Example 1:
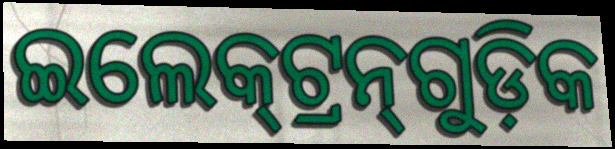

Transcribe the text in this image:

ଇଲେକ୍‍ଟ୍ରନ୍‍ଗୁଡ଼ିକ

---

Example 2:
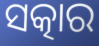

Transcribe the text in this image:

ସତ୍କାର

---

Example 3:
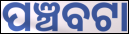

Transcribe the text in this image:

ପଞ୍ଚବଟା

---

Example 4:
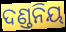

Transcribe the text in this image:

ଦଣ୍ଡନିୟ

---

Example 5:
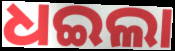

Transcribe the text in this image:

ଧଇଲା